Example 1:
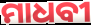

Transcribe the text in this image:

ମାଧବୀ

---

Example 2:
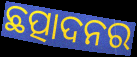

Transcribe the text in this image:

ଛତ୍ପାଦନର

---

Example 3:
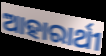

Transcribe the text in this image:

ଆହାରାର୍ଥୀ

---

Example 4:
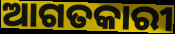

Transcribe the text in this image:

ଆଗତକାରୀ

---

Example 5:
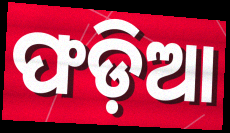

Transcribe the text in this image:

ଫଡ଼ିଆ